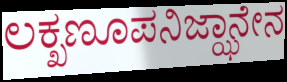
ಲಕ್ಖಣೂಪನಿಜ್ಝಾನೇನ